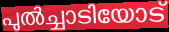
പുൽച്ചാടിയോട്